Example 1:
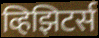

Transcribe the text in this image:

व्हिझिटर्स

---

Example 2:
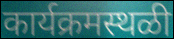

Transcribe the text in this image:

कार्यक्रमस्थळी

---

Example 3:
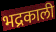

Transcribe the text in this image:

भद्रकाली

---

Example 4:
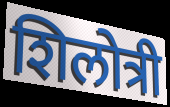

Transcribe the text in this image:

शिलोत्री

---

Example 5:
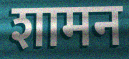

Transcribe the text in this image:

शामन